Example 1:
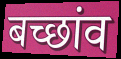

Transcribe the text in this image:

बच्छांव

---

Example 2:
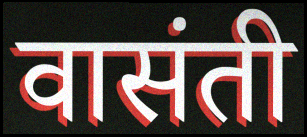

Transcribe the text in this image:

वासंती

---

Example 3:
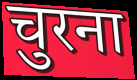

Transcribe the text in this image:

चुरना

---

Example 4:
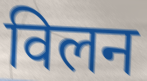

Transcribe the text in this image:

विलन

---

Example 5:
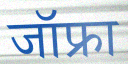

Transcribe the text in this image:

जॉफ्रा